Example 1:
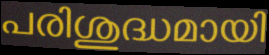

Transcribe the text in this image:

പരിശുദ്ധമായി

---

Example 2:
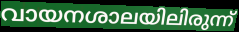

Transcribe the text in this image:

വായനശാലയിലിരുന്ന്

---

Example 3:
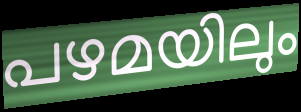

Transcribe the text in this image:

പഴമയിലും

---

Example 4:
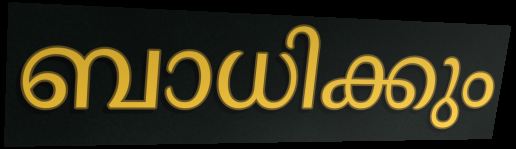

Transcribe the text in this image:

ബാധിക്കും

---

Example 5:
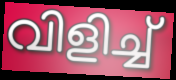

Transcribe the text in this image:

വിളിച്ച്